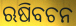
ଋଷିବଚନ